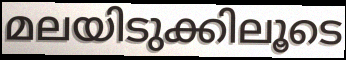
മലയിടുക്കിലൂടെ